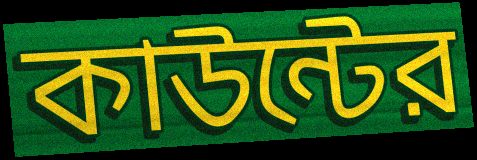
কাউন্টের